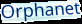
Orphanet